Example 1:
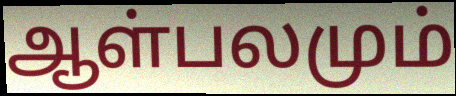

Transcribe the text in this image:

ஆள்பலமும்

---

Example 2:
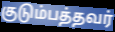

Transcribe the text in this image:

குடும்பத்தவர்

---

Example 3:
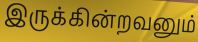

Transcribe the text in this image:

இருக்கின்றவனும்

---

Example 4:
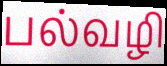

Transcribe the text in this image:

பல்வழி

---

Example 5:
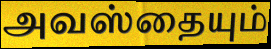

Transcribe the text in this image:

அவஸ்தையும்